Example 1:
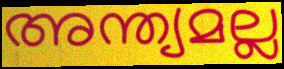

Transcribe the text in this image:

അന്ത്യമല്ല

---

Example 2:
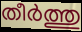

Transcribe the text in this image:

തീർത്തു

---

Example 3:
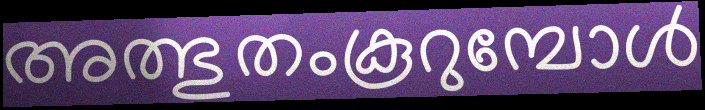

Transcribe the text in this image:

അത്ഭുതംകൂറുമ്പോൾ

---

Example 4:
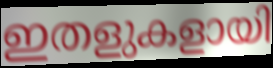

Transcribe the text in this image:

ഇതളുകളായി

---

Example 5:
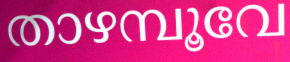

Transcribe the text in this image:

താഴമ്പൂവേ